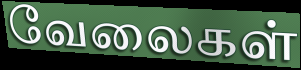
வேலைகள்